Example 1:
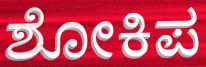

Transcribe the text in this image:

ಶೋಕಿಪ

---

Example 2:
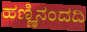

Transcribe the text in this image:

ಹಣ್ಣಿನಂದದಿ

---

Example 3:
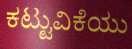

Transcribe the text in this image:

ಕಟ್ಟುವಿಕೆಯು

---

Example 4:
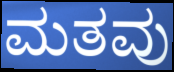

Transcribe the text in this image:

ಮತವು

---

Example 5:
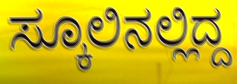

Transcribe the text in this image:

ಸ್ಕೂಲಿನಲ್ಲಿದ್ದ